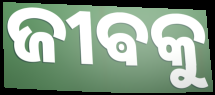
ଜୀଵକୁ